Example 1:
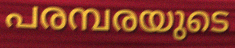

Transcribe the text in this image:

പരമ്പരയുടെ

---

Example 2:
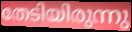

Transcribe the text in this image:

തേടിയിരുന്നു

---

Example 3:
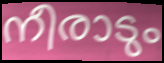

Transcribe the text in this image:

നീരാടും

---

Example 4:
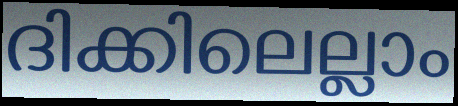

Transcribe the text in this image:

ദിക്കിലെല്ലാം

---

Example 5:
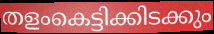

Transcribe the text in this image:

തളംകെട്ടിക്കിടക്കും